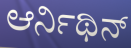
ಆರ್ನಿಥಿನ್